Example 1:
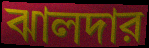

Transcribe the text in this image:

ঝালদার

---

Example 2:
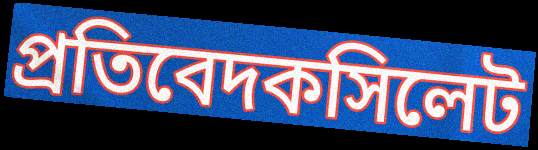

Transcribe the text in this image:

প্রতিবেদকসিলেট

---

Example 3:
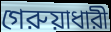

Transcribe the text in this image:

গেরুয়াধারী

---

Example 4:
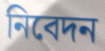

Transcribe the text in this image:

নিবেদন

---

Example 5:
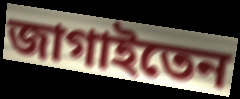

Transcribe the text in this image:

জাগাইতেন